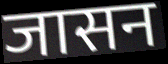
जासन